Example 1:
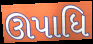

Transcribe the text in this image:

ઊપાધિ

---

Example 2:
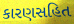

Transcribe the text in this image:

કારણસહિત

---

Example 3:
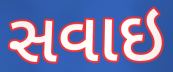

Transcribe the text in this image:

સવાઇ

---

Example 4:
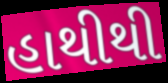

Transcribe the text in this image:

હાથીથી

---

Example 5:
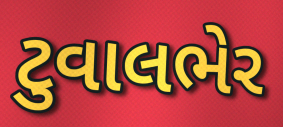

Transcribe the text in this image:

ટુવાલભેર